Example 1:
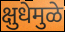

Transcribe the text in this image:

क्षुधेमुळे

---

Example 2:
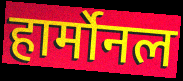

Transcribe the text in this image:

हार्मोनल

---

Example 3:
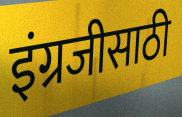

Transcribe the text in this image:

इंग्रजीसाठी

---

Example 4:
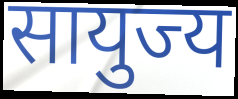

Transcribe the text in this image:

सायुज्य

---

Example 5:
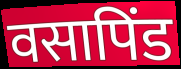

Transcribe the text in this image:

वसापिंड